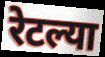
रेटल्या